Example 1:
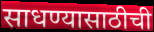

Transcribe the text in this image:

साधण्यासाठीची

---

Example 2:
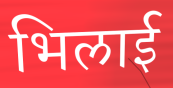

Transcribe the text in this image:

भिलाई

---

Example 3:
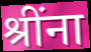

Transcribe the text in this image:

श्रींना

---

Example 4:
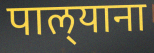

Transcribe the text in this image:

पाल्याना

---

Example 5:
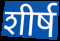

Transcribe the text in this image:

शीर्ष